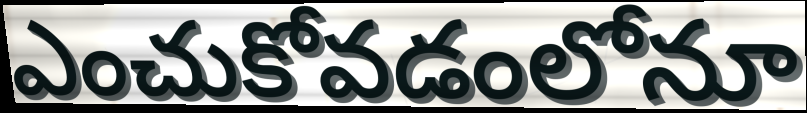
ఎంచుకోవడంలోనూ